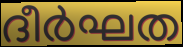
ദീർഘത